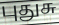
புதுசு